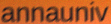
annauniv